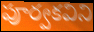
పూర్వకవిని